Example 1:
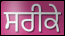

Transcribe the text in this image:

ਸਰੀਕੇ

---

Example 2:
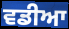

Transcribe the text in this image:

ਵਡੀਆ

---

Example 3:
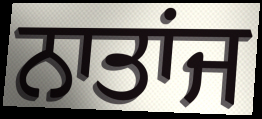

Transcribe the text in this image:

ਨਾਤਾਂਜ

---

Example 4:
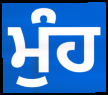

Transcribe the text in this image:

ਮੁੰਹ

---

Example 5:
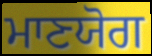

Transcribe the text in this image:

ਮਾਣਯੋਗ